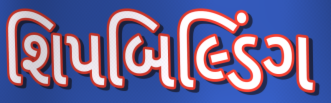
શિપબિલ્ડિંગ